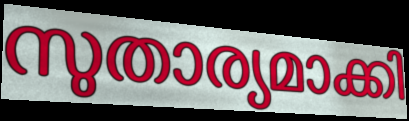
സുതാര്യമാക്കി